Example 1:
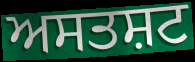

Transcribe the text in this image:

ਅਸਤਸ਼ਟ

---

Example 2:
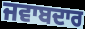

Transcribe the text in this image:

ਜਵਾਬਦਾਰ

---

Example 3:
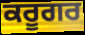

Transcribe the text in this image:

ਕਰੂਗਰ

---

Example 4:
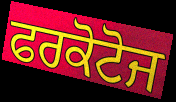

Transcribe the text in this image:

ਫਰਕੋਟੋਜ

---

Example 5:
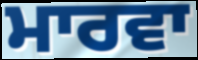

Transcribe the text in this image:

ਮਾਰਵਾ